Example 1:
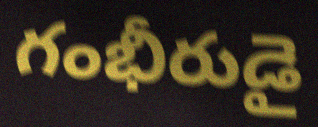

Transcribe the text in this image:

గంభీరుడై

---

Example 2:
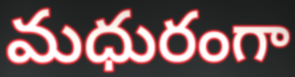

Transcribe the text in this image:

మధురంగా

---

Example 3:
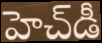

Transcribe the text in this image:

హెచ్‌డీ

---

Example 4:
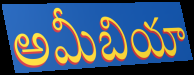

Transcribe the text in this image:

అమీబియా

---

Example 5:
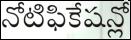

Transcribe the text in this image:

నోటిఫికేషన్లో